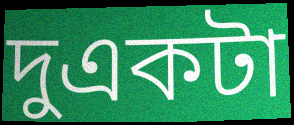
দুএকটা